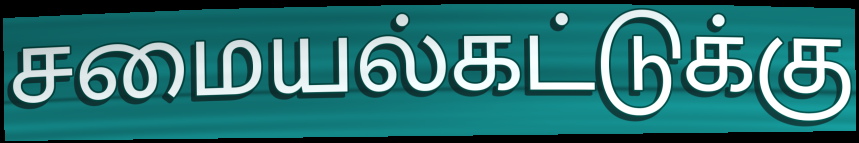
சமையல்கட்டுக்கு